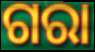
ଗରା